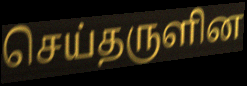
செய்தருளின